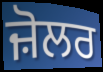
ਜ਼ੋਲਰ